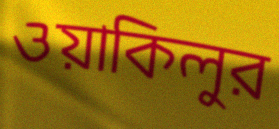
ওয়াকিলুর